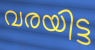
വരയിട്ട